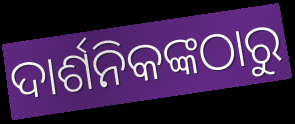
ଦାର୍ଶନିକଙ୍କଠାରୁ